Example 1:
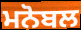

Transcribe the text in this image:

ਮਨੋਬਲ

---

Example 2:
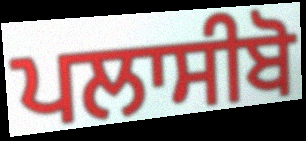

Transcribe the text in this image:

ਪਲਾਸੀਬੋ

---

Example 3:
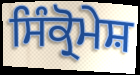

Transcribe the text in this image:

ਸਿੰਕ੍ਰੋਮੇਸ਼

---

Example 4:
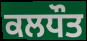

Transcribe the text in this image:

ਕਲਧੌਤ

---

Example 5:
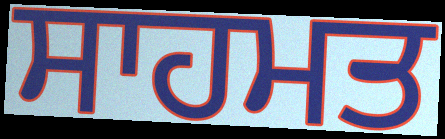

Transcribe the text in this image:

ਸਾਹਮਤ